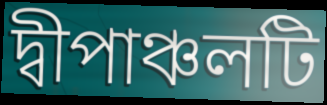
দ্বীপাঞ্চলটি